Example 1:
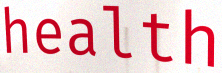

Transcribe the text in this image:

health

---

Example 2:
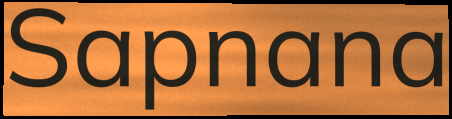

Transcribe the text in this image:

Sapnana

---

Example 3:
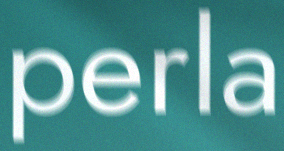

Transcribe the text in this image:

perla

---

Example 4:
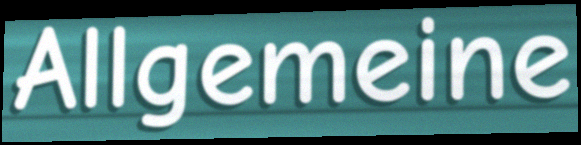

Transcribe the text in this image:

Allgemeine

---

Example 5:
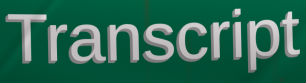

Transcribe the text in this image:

Transcript